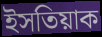
ইসতিয়াক